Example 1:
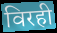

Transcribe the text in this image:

विरही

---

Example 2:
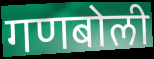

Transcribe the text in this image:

गणबोली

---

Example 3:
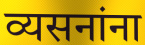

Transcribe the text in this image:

व्यसनांना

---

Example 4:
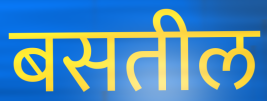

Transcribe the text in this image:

बसतील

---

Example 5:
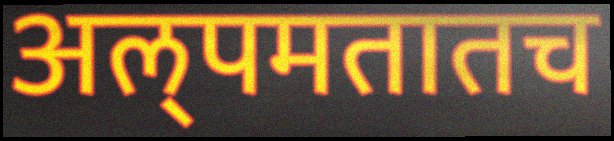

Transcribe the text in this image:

अल्पमतातच